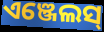
ଏଞ୍ଜେଲସ୍